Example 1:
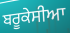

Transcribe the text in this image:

ਬਰੂਕੇਸੀਆ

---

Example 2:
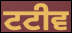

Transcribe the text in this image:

ਟਟੀਵ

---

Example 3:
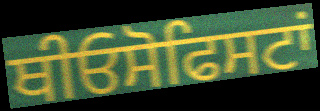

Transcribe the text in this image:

ਥੀਓਸੋਫਿਸਟਾਂ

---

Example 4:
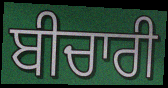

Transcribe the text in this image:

ਬੀਚਾਰੀ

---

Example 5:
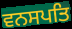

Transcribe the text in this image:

ਵਨਸਪਤਿ